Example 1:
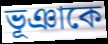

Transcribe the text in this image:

ভূঞাকে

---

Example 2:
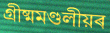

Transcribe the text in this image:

গ্ৰীষ্মমণ্ডলীয়ৰ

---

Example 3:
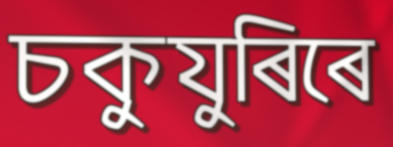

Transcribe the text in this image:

চকুযুৰিৰে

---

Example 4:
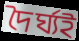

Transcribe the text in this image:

দৈৰ্ঘ্যই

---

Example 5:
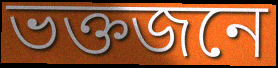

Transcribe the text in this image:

ভক্তজনে